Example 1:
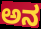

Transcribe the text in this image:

ಅನ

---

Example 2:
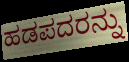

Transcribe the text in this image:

ಹಡಪದರನ್ನು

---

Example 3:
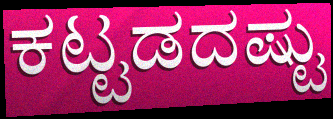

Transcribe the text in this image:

ಕಟ್ಟಡದಷ್ಟು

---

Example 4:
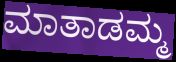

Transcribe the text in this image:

ಮಾತಾಡಮ್ಮ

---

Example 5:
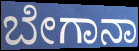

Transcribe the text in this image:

ಬೇಗಾನಾ